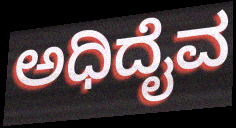
ಅಧಿದೈವ